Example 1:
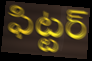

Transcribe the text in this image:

ఫిట్టర్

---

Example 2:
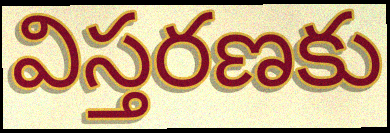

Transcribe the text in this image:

విస్తరణకు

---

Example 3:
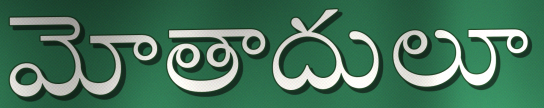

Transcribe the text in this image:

మోతాదులూ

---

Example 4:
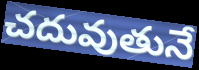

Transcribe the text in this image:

చదువుతునే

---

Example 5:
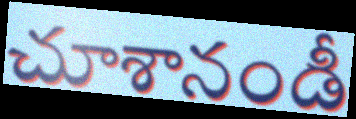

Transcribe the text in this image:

చూశానండీ